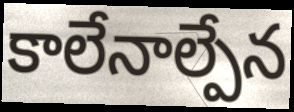
కాలేనాల్పేన